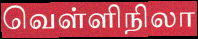
வெள்ளிநிலா